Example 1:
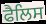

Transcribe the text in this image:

ਫੈਲਿਸ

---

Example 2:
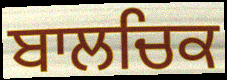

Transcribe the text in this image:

ਬਾਲਚਿਕ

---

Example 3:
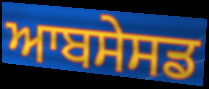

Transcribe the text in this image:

ਆਬਸੇਸਡ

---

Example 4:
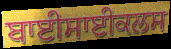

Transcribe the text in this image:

ਬਾਈਸਾਈਕਲਸ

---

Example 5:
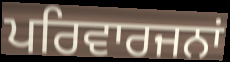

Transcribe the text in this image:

ਪਰਿਵਾਰਜਨਾਂ